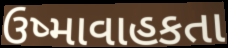
ઉષ્માવાહકતા